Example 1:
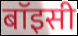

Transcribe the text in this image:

बॉइसी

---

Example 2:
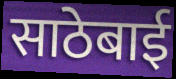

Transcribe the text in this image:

साठेबाई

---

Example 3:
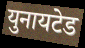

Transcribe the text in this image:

युनायटेड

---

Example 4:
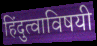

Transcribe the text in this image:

हिंदुत्वाविषयी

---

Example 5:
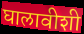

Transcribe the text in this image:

घालावीशी